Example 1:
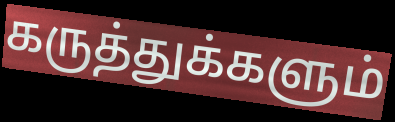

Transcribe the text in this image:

கருத்துக்களும்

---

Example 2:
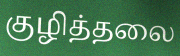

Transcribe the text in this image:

குழித்தலை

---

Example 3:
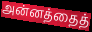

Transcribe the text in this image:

அன்னத்தைத்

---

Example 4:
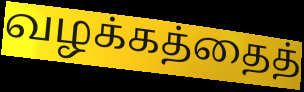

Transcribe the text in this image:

வழக்கத்தைத்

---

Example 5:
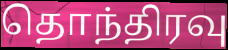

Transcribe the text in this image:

தொந்திரவு